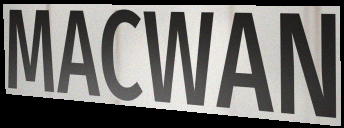
MACWAN